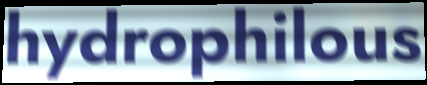
hydrophilous